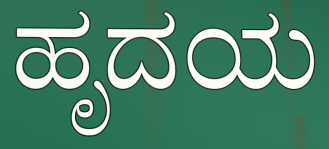
ಹೃದಯ